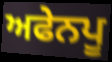
ਅਫੇਨਪੂ